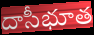
దాసీభూత